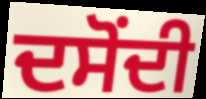
ਦਸੋਂਦੀ